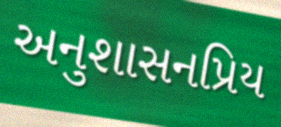
અનુશાસનપ્રિય